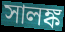
সালঙ্ক